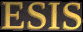
ESIS